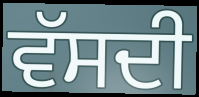
ਵੱਸਦੀ